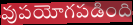
వుపయోగపడింది